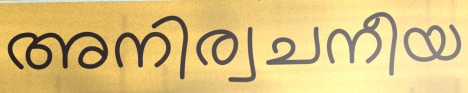
അനിര്വചനീയ